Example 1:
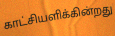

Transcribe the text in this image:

காட்சியளிக்கின்றது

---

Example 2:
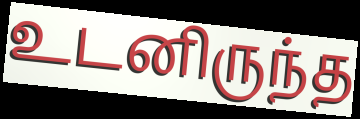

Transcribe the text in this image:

உடனிருந்த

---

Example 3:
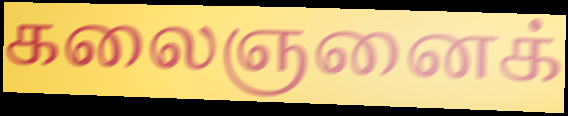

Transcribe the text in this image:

கலைஞனைக்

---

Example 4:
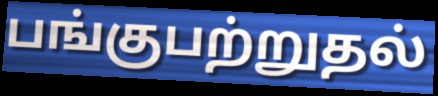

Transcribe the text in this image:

பங்குபற்றுதல்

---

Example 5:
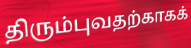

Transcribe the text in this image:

திரும்புவதற்காகக்